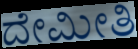
ದೇಮೀತಿ